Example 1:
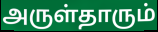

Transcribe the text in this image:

அருள்தாரும்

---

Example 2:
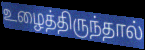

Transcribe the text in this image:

உழைத்திருந்தால்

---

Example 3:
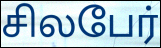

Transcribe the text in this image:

சிலபேர்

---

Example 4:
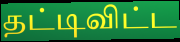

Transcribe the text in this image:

தட்டிவிட்ட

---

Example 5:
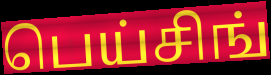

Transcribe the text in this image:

பெய்சிங்